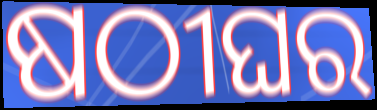
ଷଠୀଘର